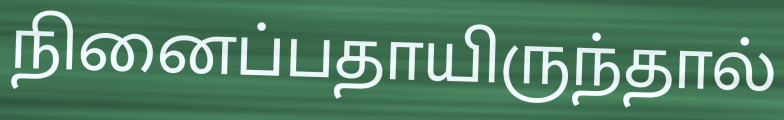
நினைப்பதாயிருந்தால்